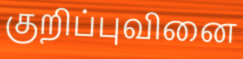
குறிப்புவினை